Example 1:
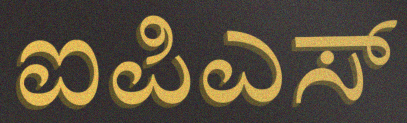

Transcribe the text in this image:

ಐಪಿಎಸ್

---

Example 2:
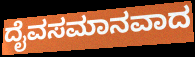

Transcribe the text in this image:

ದೈವಸಮಾನವಾದ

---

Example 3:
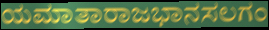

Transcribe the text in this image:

ಯಮಾತಾರಾಜಭಾನಸಲಗಂ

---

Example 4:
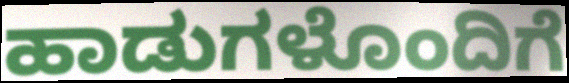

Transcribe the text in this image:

ಹಾಡುಗಳೊಂದಿಗೆ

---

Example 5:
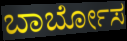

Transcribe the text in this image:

ಬಾರ್ಬೋಸ